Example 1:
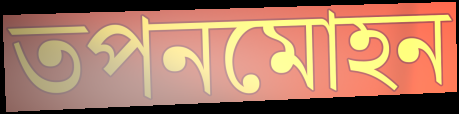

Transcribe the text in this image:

তপনমোহন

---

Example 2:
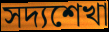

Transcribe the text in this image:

সদ্যশেখা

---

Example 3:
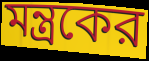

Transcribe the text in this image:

মন্ত্রকের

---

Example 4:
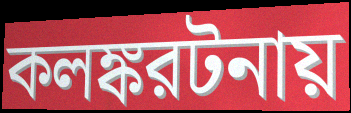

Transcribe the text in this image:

কলঙ্করটনায়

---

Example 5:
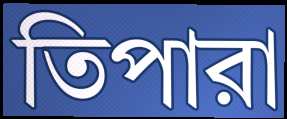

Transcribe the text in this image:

তিপারা